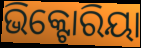
ଭିକ୍ଟୋରିୟା